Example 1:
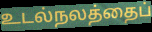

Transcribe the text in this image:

உடல்நலத்தைப்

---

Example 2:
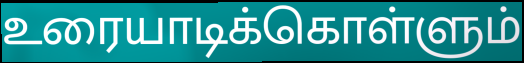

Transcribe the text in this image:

உரையாடிக்கொள்ளும்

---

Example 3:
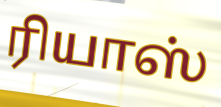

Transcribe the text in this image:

ரியாஸ்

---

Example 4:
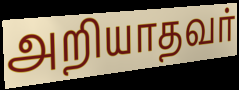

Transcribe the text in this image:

அறியாதவர்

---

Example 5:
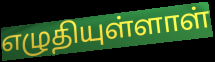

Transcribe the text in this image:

எழுதியுள்ளாள்